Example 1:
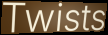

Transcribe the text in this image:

Twists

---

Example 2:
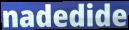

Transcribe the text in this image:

nadedide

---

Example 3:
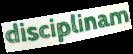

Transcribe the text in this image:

disciplinam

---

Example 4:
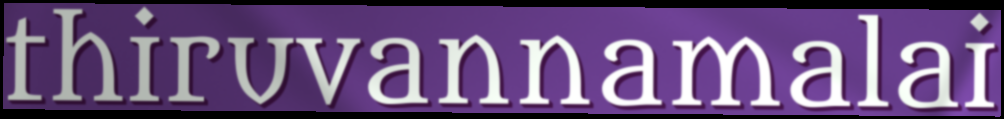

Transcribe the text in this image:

thiruvannamalai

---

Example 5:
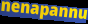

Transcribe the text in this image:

nenapannu